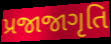
પ્રજાજાગૃતિ